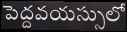
పెద్దవయస్సులో